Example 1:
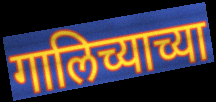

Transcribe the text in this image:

गालिच्याच्या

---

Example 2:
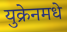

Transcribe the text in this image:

युक्रेनमधे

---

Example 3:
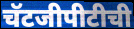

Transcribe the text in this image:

चॅटजीपीटीची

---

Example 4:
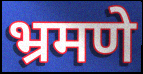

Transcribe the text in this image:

भ्रमणे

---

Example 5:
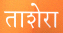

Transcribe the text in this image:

ताशेरा